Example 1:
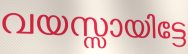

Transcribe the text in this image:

വയസ്സായിട്ടേ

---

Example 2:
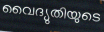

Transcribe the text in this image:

വൈദ്യുതിയുടെ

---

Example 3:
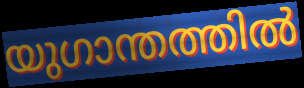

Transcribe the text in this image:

യുഗാന്തത്തിൽ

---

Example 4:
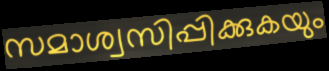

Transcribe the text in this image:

സമാശ്വസിപ്പിക്കുകയും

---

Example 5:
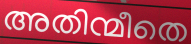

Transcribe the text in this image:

അതിന്മീതെ